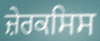
ਜ਼ੇਰਕਸਿਸ